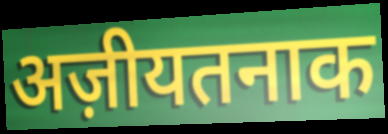
अज़ीयतनाक